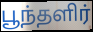
பூந்தளிர்